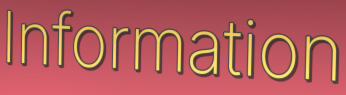
Information